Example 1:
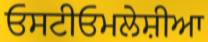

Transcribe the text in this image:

ਓਸਟੀਓਮਲੇਸ਼ੀਆ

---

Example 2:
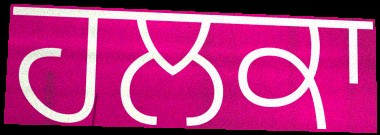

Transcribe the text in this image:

ਹਲਕਾ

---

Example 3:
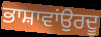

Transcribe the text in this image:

ਭਾਸ਼ਾਵਾਂਉਰਦੂ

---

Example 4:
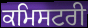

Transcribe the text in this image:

ਕਮਿਸਟਰੀ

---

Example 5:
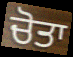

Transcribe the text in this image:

ਚੋਤਾ